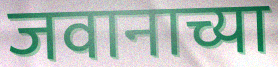
जवानाच्या